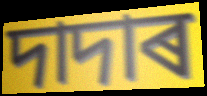
দাদাৰ